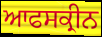
ਆਫਸਕ੍ਰੀਨ